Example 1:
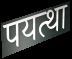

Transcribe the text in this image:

पयत्था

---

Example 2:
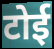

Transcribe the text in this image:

टोई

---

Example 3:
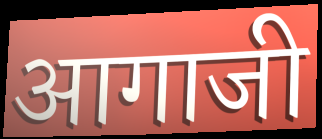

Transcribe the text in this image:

आगाजी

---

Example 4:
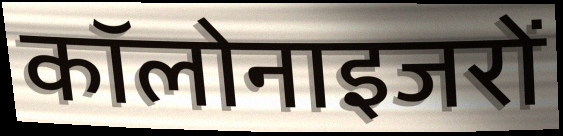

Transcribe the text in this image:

कॉलोनाइजरों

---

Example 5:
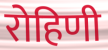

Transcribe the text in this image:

रोहिणी